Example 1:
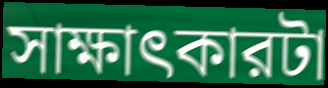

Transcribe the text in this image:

সাক্ষাৎকারটা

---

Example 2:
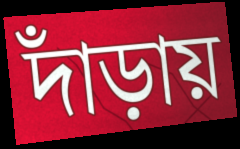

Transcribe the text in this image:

দাঁড়ায়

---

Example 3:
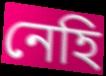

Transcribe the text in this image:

নেহি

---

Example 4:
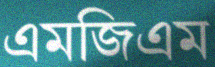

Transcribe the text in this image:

এমজিএম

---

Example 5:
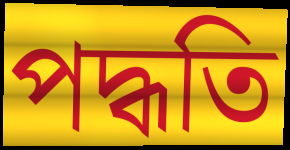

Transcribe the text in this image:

পদ্ধতি